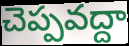
చెప్పవద్దా